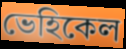
ভেহিকেল